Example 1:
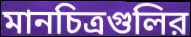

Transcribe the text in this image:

মানচিত্রগুলির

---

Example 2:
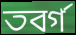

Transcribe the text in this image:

তবর্গ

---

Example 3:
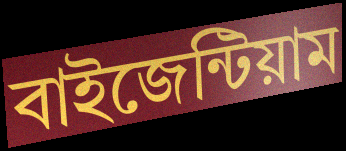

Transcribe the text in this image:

বাইজেন্টিয়াম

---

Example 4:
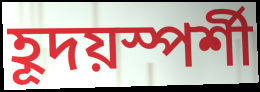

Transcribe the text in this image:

হূদয়স্পর্শী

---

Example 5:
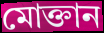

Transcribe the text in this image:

মোক্তান